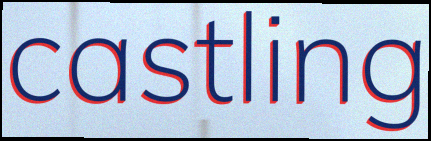
castling